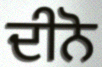
ਦੀਨੋ